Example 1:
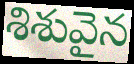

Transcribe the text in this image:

శిశువైన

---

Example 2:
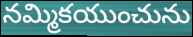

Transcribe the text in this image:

నమ్మికయుంచును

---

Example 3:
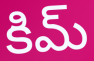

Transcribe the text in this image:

కిమ్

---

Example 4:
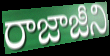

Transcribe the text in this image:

రాజాజీని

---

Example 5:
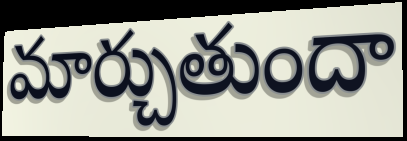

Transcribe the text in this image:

మార్చుతుందా